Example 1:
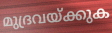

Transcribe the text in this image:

മുദ്രവയ്ക്കുക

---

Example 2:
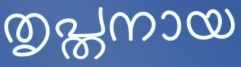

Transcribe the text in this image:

തൃപ്തനായ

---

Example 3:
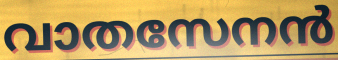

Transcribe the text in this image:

വാതസേനൻ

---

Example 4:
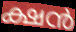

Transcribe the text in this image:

ക്ഷൻ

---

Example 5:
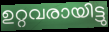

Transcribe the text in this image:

ഉറ്റവരായിട്ടു